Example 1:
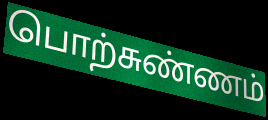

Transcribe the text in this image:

பொற்சுண்ணம்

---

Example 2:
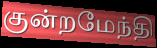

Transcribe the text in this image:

குன்றமேந்தி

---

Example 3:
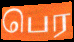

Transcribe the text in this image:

பெர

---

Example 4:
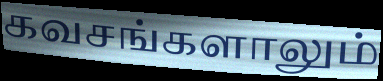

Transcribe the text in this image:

கவசங்களாலும்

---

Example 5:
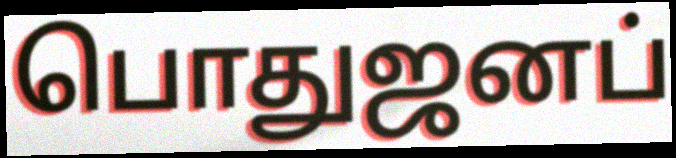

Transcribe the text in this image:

பொதுஜனப்